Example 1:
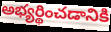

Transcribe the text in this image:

అభ్యర్థించడానికి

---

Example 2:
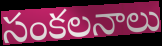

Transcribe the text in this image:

సంకలనాలు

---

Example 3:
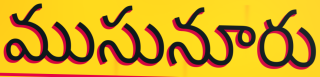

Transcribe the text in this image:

ముసునూరు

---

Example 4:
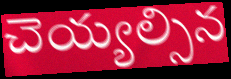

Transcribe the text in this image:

చెయ్యల్సిన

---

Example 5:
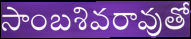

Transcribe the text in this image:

సాంబశివరావుతో